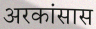
अरकांसास